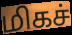
மிகச்